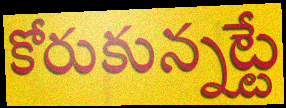
కోరుకున్నట్టే